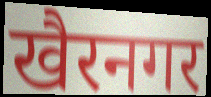
खैरनगर